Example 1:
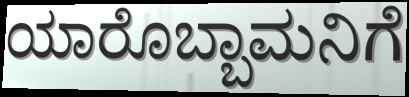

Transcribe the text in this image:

ಯಾರೊಬ್ಬಾಮನಿಗೆ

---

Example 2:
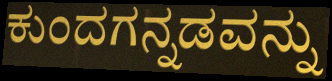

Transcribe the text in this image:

ಕುಂದಗನ್ನಡವನ್ನು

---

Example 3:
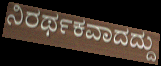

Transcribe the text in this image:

ನಿರರ್ಥಕವಾದದ್ದು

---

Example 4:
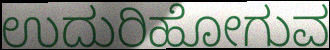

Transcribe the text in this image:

ಉದುರಿಹೋಗುವ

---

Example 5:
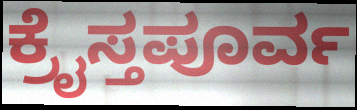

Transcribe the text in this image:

ಕ್ರೈಸ್ತಪೂರ್ವ